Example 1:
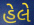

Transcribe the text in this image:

હેલે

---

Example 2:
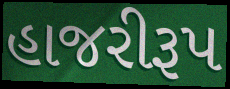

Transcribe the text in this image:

હાજરીરૂપ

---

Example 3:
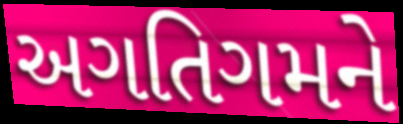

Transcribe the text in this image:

અગતિગમને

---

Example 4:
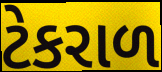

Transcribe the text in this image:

ટેકરાળ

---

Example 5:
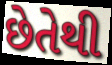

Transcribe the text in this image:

છેતેથી